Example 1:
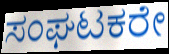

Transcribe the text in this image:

ಸಂಘಟಕರೇ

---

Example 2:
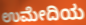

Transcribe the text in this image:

ಉಮೇದಿಯ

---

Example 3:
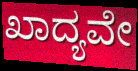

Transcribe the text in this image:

ಖಾದ್ಯವೇ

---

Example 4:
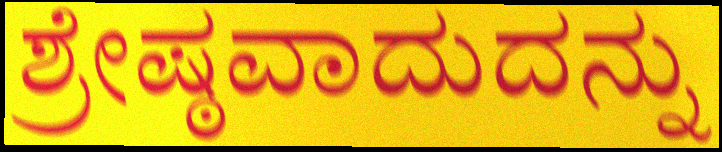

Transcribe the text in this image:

ಶ್ರೇಷ್ಠವಾದುದನ್ನು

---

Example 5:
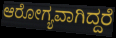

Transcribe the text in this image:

ಆರೋಗ್ಯವಾಗಿದ್ದರೆ